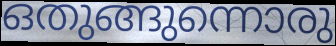
ഒതുങ്ങുന്നൊരു